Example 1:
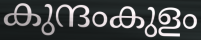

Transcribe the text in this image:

കുന്ദംകുളം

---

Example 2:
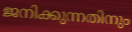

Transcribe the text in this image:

ജനിക്കുന്നതിനും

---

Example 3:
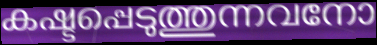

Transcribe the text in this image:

കഷ്ടപ്പെടുത്തുന്നവനോ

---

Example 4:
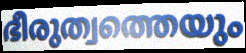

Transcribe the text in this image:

ഭീരുത്വത്തെയും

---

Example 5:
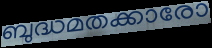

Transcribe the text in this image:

ബുദ്ധമതക്കാരോ